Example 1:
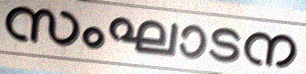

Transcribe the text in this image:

സംഘാടന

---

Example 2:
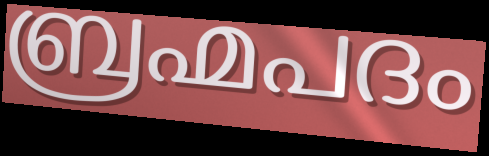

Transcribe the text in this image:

ബ്രഹ്മപദം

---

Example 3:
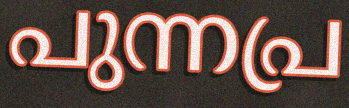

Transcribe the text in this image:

പുന്നപ്ര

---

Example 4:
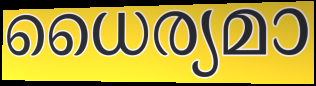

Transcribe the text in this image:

ധൈര്യമാ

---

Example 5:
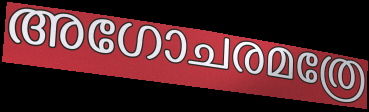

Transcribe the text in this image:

അഗോചരമത്രേ